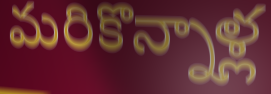
మరికొన్నాళ్ల